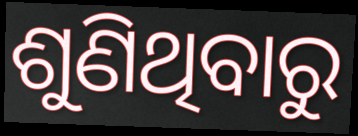
ଶୁଣିଥିବାରୁ